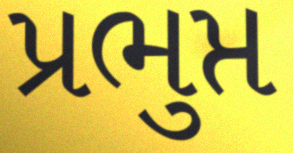
પ્રભુપ્ત